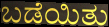
ಬಡೆಯಿತು